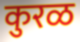
कुरळ